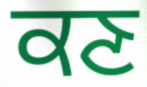
ਕਣ